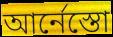
আর্নেস্তো